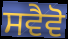
ਸਵੈਵੋ